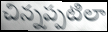
చిన్నప్పటిలా